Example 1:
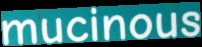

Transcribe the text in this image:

mucinous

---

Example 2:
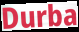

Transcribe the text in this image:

Durba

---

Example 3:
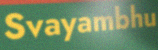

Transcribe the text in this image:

Svayambhu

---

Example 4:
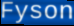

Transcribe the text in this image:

Fyson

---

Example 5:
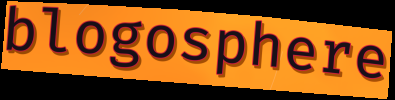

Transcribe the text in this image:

blogosphere